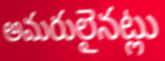
అమరులైనట్లు